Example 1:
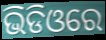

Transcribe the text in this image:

ଭିଡିଓରେ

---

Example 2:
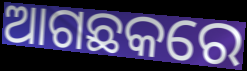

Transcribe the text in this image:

ଆଗଛକରେ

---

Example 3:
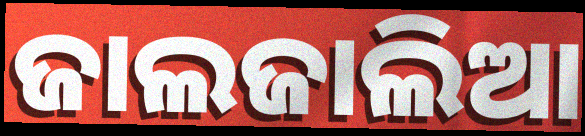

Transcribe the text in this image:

ଜାଲଜାଲିଆ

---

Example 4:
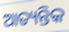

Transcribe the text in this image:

ଆତ୍ୟନ୍ତିକ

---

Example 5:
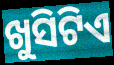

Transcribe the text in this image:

ଖୁସିଟିଏ